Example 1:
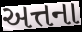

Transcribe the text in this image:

અત્તના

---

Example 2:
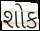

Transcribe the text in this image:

શોક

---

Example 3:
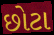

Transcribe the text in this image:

છોટા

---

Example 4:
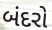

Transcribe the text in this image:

બંદરો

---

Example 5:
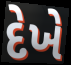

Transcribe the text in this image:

દેખે